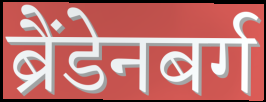
ब्रैंडेनबर्ग